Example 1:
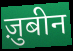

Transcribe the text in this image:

ज़ुबीन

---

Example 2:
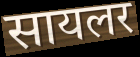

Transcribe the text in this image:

सायलर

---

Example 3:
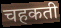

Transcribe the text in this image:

चहकती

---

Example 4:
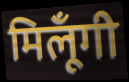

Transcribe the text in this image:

मिलूँगी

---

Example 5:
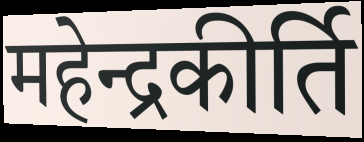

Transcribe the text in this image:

महेन्द्रकीर्ति